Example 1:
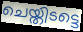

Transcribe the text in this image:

ചെയ്തിടട്ടെ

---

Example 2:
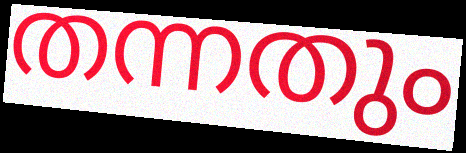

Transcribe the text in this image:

തന്നതും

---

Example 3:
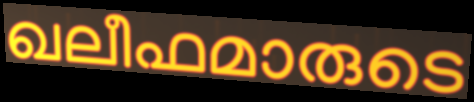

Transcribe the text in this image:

ഖലീഫമാരുടെ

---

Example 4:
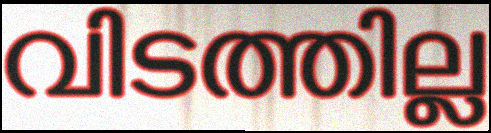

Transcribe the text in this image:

വിടത്തില്ല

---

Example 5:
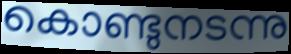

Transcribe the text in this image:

കൊണ്ടുനടന്നു